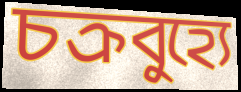
চক্রবুহ্যে